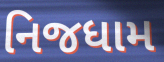
નિજધામ